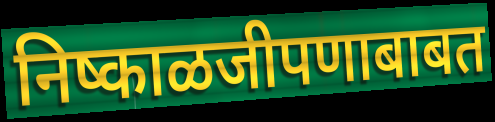
निष्काळजीपणाबाबत